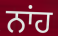
ਨਾਂਹ